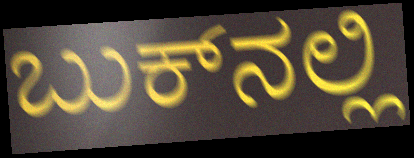
ಬುಕ್‌ನಲ್ಲಿ